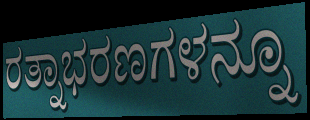
ರತ್ನಾಭರಣಗಳನ್ನೂ